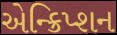
એન્ક્રિપ્શન